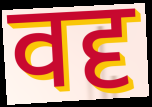
वदृ